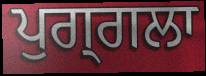
ਪੁਗ੍ਗਲਾ